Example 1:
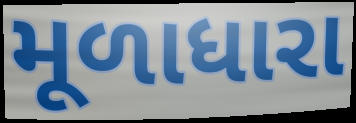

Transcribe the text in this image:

મૂળાધારા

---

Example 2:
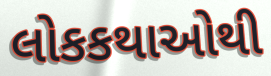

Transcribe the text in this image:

લોકકથાઓથી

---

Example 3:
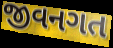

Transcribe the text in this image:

જીવનગત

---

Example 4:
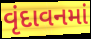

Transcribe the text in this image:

વૃંદાવનમાં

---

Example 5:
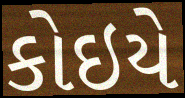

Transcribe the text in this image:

કોઇયે